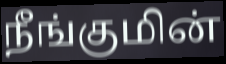
நீங்குமின்